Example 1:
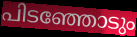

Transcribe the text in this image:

പിടഞ്ഞോടും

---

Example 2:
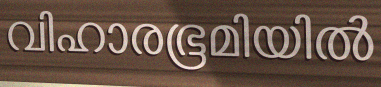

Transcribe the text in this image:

വിഹാരഭൂമിയിൽ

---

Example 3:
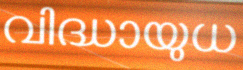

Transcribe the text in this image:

വിദ്ധായുധ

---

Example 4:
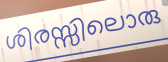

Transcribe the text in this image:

ശിരസ്സിലൊരു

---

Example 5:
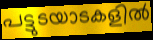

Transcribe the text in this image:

പട്ടുടയാടകളിൽ